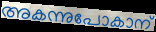
അകന്നുപോകാന്